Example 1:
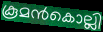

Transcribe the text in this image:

കൂമൻകൊല്ലി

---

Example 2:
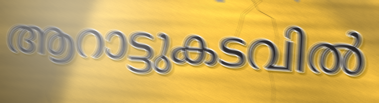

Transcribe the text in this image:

ആറാട്ടുകടവിൽ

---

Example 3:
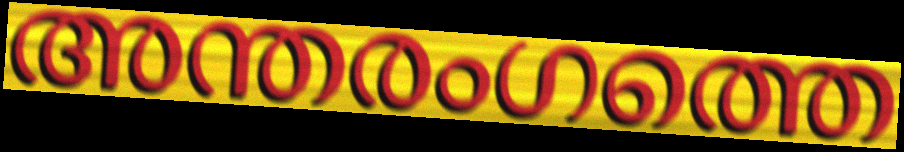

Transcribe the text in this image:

അന്തരംഗത്തെ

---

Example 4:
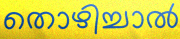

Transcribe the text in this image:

തൊഴിച്ചാൽ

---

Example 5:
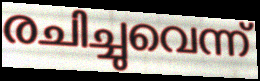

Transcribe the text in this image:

രചിച്ചുവെന്ന്